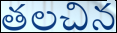
తలచిన